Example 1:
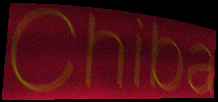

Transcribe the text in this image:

Chiba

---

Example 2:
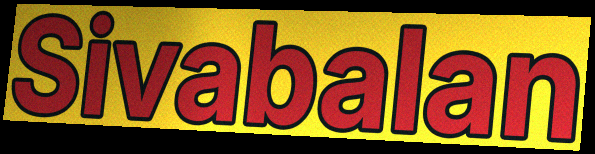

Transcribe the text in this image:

Sivabalan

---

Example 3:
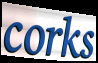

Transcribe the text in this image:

corks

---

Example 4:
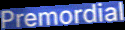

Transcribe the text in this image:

Premordial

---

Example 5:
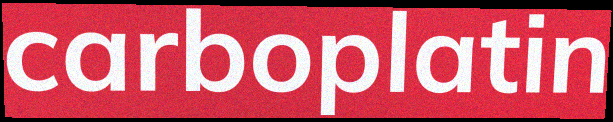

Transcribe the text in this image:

carboplatin